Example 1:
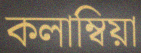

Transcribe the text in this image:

কলাম্বিয়া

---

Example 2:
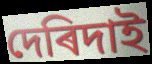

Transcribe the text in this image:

দেৰিদাই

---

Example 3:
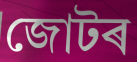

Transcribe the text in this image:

জোটৰ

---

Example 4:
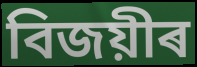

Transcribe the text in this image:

বিজয়ীৰ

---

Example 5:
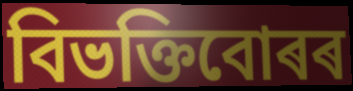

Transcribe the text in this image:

বিভক্তিবোৰৰ